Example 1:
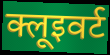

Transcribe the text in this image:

क्लूइवर्ट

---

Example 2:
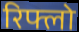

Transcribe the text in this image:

रिफ्लो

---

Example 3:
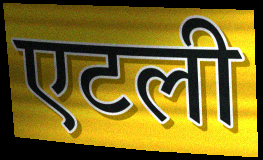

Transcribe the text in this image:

एटली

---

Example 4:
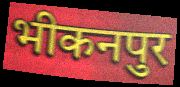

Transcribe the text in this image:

भीकनपुर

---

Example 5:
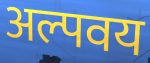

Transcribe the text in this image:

अल्पवय